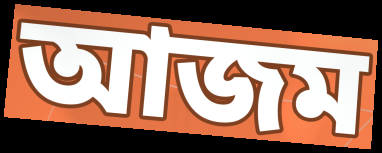
আজম